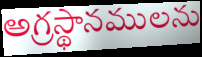
అగ్రస్థానములను